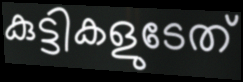
കുട്ടികളുടേത്